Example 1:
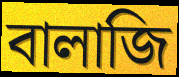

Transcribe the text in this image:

বালাজি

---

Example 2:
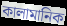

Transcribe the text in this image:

কালামানিক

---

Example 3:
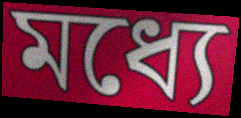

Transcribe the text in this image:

মধ্যে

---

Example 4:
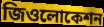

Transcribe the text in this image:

জিওলোকেশন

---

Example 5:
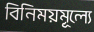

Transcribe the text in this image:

বিনিময়মূল্যে